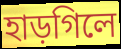
হাড়গিলে